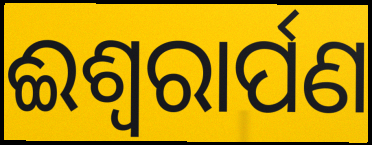
ଈଶ୍ୱରାର୍ପଣ